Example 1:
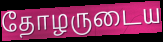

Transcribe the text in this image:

தோழருடைய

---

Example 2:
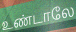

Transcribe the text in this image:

உண்டாலே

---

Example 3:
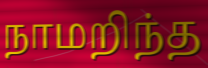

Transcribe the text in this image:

நாமறிந்த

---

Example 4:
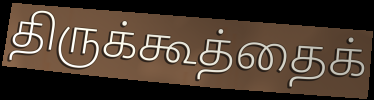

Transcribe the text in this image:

திருக்கூத்தைக்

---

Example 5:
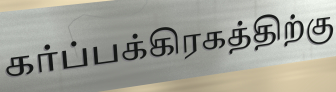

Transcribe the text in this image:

கர்ப்பக்கிரகத்திற்கு